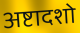
अष्टादशो